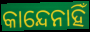
କାନ୍ଦେନାହିଁ